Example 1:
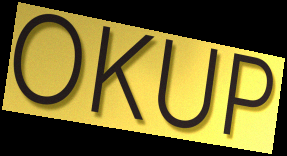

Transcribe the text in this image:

OKUP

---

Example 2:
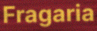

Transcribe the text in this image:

Fragaria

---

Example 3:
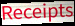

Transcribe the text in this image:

Receipts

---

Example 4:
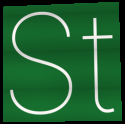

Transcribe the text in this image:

St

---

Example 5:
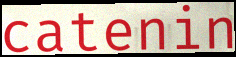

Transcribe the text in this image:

catenin